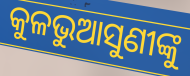
କୁଳଭୁଆସୁଣୀଙ୍କୁ